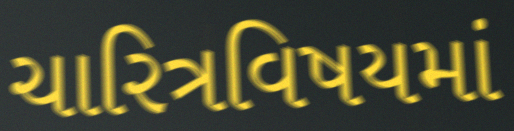
ચારિત્રવિષયમાં